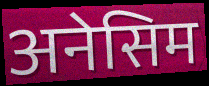
अनेसिम